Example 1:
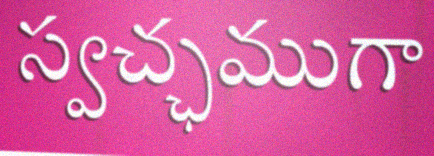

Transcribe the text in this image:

స్వచ్ఛముగా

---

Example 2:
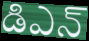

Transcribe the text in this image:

డిఎన్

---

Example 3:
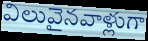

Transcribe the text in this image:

విలువైనవాళ్లుగా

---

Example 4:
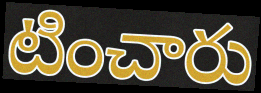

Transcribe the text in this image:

టించారు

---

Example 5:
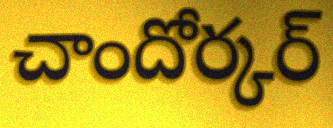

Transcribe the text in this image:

చాందోర్కర్